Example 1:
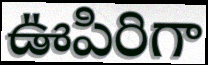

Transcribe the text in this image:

ఊపిరిగా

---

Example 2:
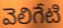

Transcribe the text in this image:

వెలిగేటి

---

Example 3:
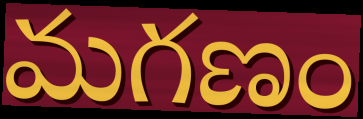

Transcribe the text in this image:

మగణం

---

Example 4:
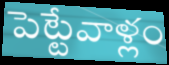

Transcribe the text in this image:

పెట్టేవాళ్లం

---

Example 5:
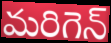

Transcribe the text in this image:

మరిగెన్